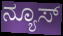
ನ್ಯೂಸ್